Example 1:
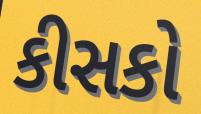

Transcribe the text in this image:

કીસકો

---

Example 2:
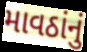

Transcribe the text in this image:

માવઠાંનું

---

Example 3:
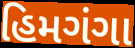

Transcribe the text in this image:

હિમગંગા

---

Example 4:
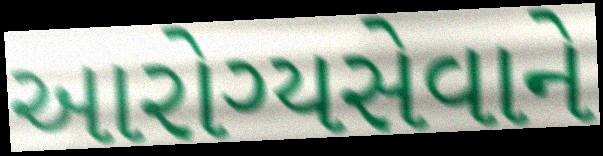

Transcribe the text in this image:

આરોગ્યસેવાને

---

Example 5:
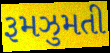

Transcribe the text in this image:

રૂમઝુમતી